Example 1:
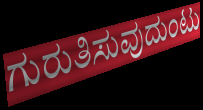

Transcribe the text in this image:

ಗುರುತಿಸುವುದುಂಟು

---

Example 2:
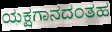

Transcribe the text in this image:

ಯಕ್ಷಗಾನದಂತಹ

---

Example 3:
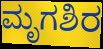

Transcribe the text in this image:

ಮೃಗಶಿರ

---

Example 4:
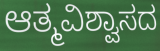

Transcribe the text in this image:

ಆತ್ಮವಿಶ್ವಾಸದ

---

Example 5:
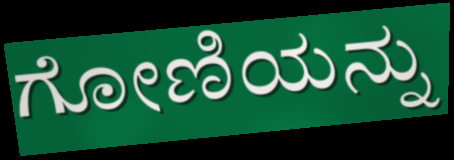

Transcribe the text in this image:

ಗೋಣಿಯನ್ನು